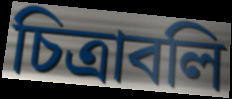
চিত্রাবলি